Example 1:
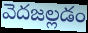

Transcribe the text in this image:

వెదజల్లడం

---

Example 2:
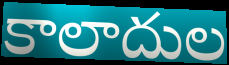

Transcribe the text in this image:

కాలాదుల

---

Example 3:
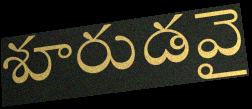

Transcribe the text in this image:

శూరుడవై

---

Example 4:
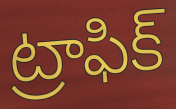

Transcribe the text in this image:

ట్రాఫిక్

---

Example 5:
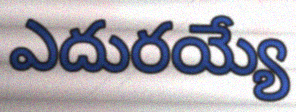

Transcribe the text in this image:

ఎదురయ్యే